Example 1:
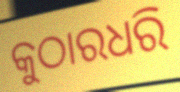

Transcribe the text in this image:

କୁଠାରଧରି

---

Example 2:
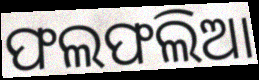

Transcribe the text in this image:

ଫଲଫଲିଆ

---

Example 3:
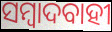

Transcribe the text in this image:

ସମ୍ବାଦବାହୀ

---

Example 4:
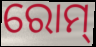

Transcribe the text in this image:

ରୋମ୍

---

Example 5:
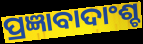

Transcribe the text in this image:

ପ୍ରଜ୍ଞାବାଦାଂଶ୍ଚ